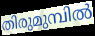
തിരുമുമ്പിൽ